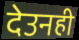
देउनही